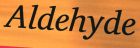
Aldehyde